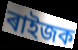
ৰাইজক